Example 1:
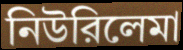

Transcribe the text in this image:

নিউরিলেমা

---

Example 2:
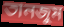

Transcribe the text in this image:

তানজুম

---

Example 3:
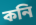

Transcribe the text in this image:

কনি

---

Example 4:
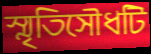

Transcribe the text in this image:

স্মৃতিসৌধটি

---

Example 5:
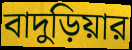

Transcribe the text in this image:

বাদুড়িয়ার